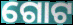
ଗୋଟ